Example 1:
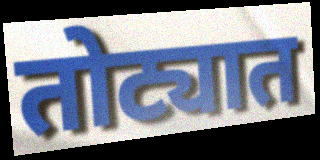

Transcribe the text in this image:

तोट्यात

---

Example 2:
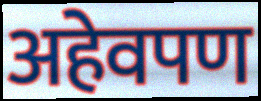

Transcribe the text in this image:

अहेवपण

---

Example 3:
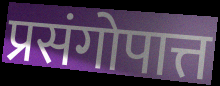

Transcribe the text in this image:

प्रसंगोपात्त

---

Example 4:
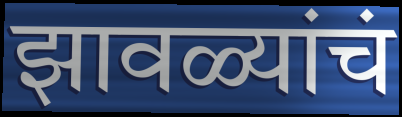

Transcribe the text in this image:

झावळ्यांचं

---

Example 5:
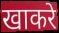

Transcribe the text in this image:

खाकरे